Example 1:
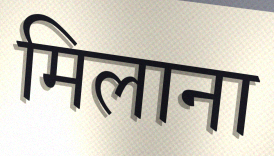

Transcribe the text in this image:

मिलाना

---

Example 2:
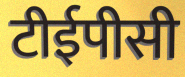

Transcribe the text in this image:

टीईपीसी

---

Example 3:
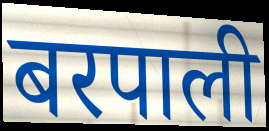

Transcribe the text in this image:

बरपाली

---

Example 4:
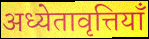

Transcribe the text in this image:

अध्येतावृत्तियाँ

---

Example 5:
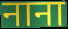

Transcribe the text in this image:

नाना